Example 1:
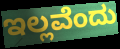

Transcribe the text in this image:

ಇಲ್ಲವೆಂದು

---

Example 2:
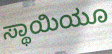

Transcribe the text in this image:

ಸ್ಥಾಯಿಯೂ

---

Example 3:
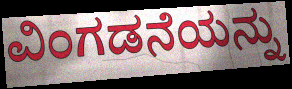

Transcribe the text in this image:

ವಿಂಗಡನೆಯನ್ನು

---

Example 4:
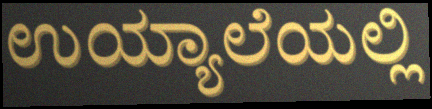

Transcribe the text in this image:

ಉಯ್ಯಾಲೆಯಲ್ಲಿ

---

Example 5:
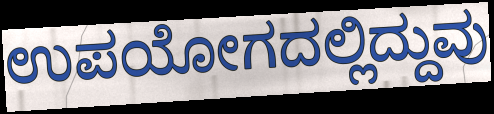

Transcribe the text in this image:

ಉಪಯೋಗದಲ್ಲಿದ್ದುವು